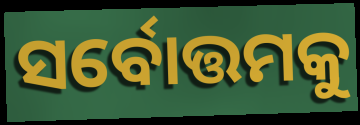
ସର୍ବୋତ୍ତମକୁ